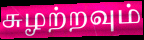
சுழற்றவும்